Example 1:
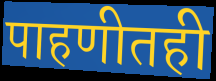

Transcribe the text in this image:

पाहणीतही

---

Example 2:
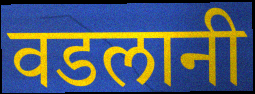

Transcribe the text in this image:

वडलानी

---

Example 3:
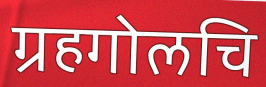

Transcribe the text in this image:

ग्रहगोलचि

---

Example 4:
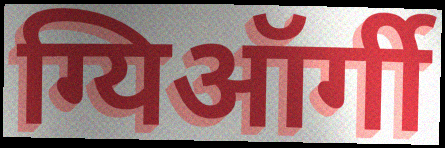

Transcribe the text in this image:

ग्यिऑर्गी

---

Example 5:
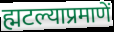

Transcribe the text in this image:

ह्मटल्याप्रमाणें